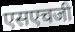
एसएचजी